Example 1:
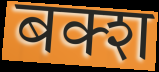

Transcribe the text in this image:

बक्श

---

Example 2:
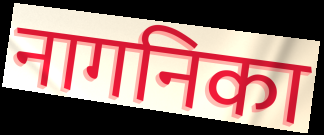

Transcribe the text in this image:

नागनिका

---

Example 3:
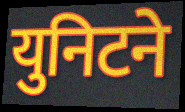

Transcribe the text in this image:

युनिटने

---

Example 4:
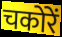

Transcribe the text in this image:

चकोरें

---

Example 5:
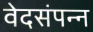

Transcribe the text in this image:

वेदसंपन्न